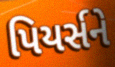
પિયર્સને